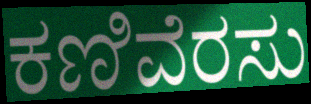
ಕಣಿವೆರಸು